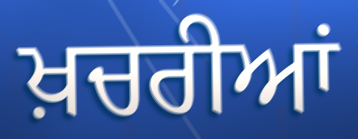
ਖ਼ਚਰੀਆਂ